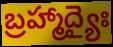
బ్రహ్మాద్యైః